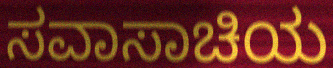
ಸವಾಸಾಚಿಯ